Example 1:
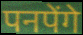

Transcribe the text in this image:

पनपेंगे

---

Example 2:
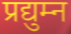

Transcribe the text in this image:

प्रद्युम्न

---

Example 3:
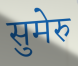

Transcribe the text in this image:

सुमेरु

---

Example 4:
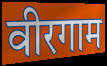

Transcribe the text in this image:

वीरगाम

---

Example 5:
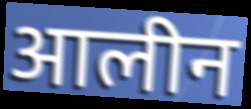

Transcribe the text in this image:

आलीन